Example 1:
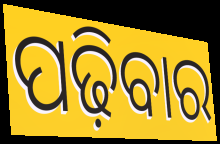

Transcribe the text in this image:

ପଢ଼ିବାର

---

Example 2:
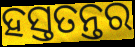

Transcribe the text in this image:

ହସ୍ତତନ୍ତର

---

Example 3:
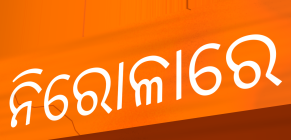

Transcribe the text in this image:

ନିରୋଳାରେ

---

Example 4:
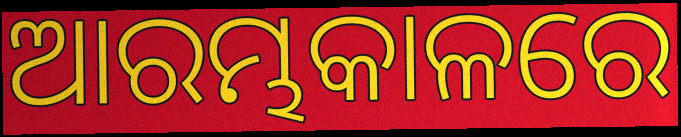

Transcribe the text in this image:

ଆରମ୍ଭକାଳରେ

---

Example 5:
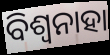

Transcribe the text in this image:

ବିଶ୍ଵନାହା